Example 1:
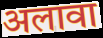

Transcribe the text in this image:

अलावा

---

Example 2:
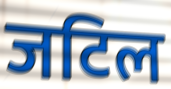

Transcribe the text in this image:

जटिल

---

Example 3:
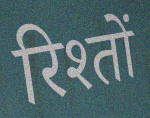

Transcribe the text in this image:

रिश्तों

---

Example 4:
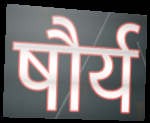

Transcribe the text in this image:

षौर्य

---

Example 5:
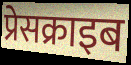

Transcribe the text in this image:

प्रेसक्राइब